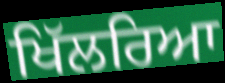
ਖਿੱਲਰਿਆ